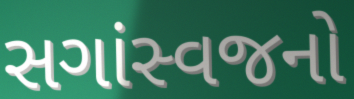
સગાંસ્વજનો